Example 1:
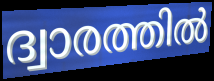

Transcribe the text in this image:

ദ്വാരത്തിൽ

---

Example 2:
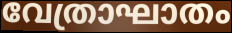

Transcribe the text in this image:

വേത്രാഘാതം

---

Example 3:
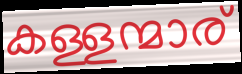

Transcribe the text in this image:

കള്ളന്മാര്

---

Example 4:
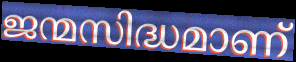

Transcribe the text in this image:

ജന്മസിദ്ധമാണ്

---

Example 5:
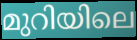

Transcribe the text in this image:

മുറിയിലെ